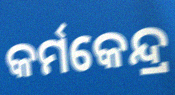
କର୍ମକେନ୍ଦ୍ର